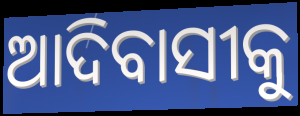
ଆଦିବାସୀକୁ